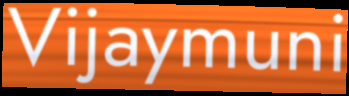
Vijaymuni